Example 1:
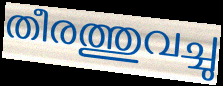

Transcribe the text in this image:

തീരത്തുവച്ചു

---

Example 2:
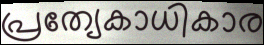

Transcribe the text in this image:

പ്രത്യേകാധികാര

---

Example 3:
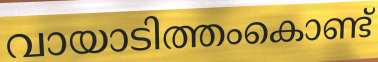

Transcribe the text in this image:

വായാടിത്തംകൊണ്ട്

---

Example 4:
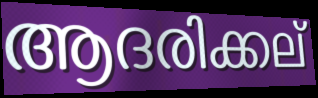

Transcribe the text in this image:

ആദരിക്കല്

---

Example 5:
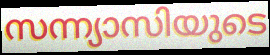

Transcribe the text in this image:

സന്ന്യാസിയുടെ